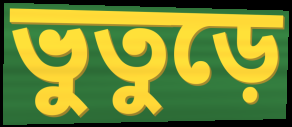
ভুতুড়ে